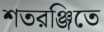
শতরঞ্জিতে